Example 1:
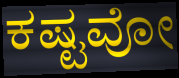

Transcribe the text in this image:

ಕಷ್ಟವೋ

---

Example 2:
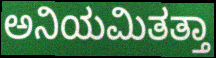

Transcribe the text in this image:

ಅನಿಯಮಿತತ್ತಾ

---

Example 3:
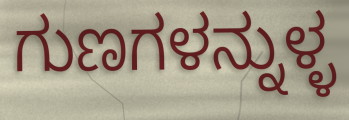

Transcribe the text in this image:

ಗುಣಗಳನ್ನುಳ್ಳ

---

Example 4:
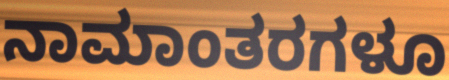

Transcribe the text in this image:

ನಾಮಾಂತರಗಳೂ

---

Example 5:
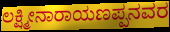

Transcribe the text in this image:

ಲಕ್ಷ್ಮೀನಾರಾಯಣಪ್ಪನವರ